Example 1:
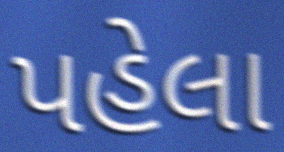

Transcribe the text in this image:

પહેલા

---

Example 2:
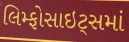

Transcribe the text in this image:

લિમ્ફોસાઇટ્સમાં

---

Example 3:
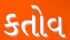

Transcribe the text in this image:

કતોવ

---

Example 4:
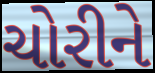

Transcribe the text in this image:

ચોરીને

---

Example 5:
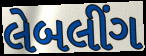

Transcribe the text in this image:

લેબલીંગ